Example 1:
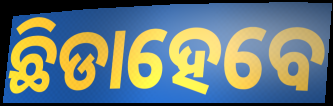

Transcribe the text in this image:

ଛିଡାହେବେ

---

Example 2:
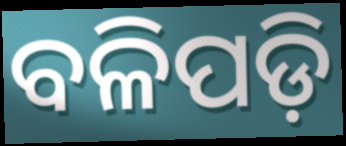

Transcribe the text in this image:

ବଳିପଡ଼ି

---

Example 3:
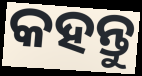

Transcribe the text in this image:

କହନ୍ତୁ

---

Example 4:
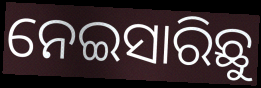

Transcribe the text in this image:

ନେଇସାରିଛୁ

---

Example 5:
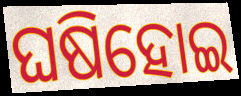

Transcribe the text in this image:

ଘଷିହୋଇ